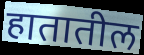
हातातील